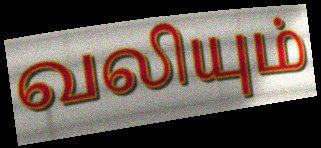
வலியும்